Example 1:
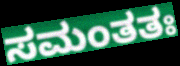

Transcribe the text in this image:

ಸಮಂತತಃ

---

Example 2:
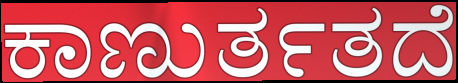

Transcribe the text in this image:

ಕಾಣುರ್ತತದೆ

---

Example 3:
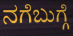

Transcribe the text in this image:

ನಗೆಬುಗ್ಗೆ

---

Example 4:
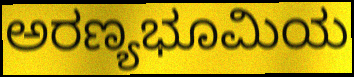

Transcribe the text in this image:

ಅರಣ್ಯಭೂಮಿಯ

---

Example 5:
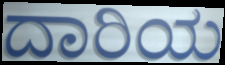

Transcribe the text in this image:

ದಾರಿಯ